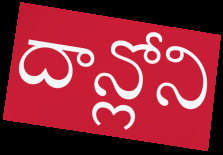
దాన్లోని